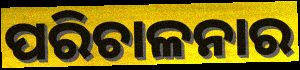
ପରିଚାଳନାର